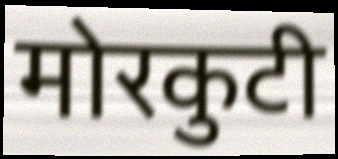
मोरकुटी